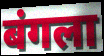
बंगला